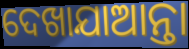
ଦେଖାଯାଆନ୍ତା